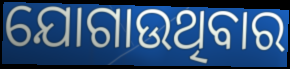
ଯୋଗାଉଥିବାର